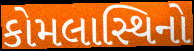
કોમલાસ્થિનો